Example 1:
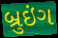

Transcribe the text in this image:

બ્રુઇંગ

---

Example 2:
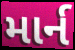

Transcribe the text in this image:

માર્ન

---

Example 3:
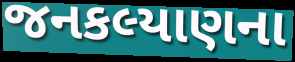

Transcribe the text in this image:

જનકલ્યાણના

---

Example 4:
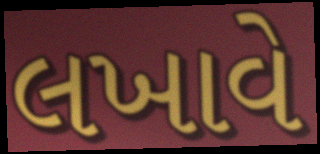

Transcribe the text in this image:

લખાવે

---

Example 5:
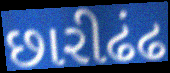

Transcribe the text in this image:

છારીઢંઢ